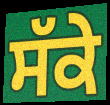
ਸੱਕੇ